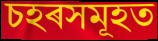
চহৰসমূহত